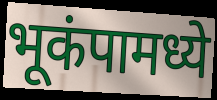
भूकंपामध्ये